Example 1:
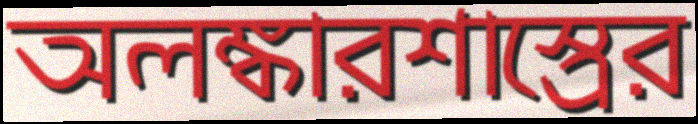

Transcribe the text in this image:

অলঙ্কারশাস্ত্রের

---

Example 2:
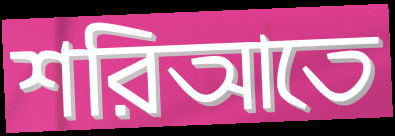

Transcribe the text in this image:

শরিআতে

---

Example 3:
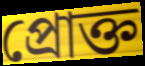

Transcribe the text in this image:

প্রোক্ত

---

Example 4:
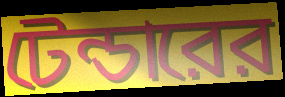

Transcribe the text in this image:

টেন্ডারের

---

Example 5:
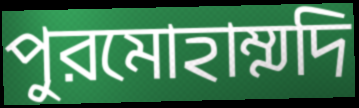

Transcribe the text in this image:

পুরমোহাম্মদি